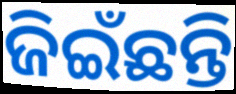
ଜିଇଁଛନ୍ତି